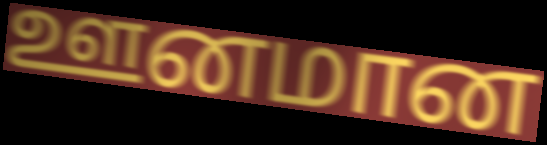
ஊனமான